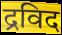
द्रविद